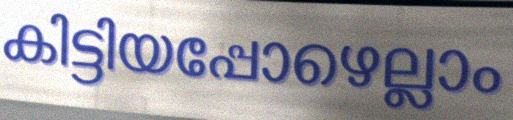
കിട്ടിയപ്പോഴെല്ലാം